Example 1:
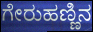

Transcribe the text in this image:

ಗೇರುಹಣ್ಣಿನ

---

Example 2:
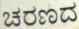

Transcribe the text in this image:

ಚರಣದ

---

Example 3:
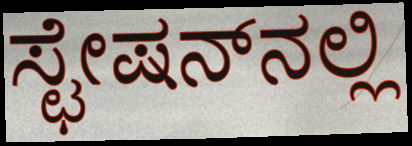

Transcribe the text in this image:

ಸ್ಟೇಷನ್‌ನಲ್ಲಿ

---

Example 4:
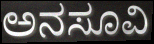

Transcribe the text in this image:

ಅನಸೂವಿ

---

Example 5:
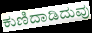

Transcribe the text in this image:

ಕುಣಿದಾಡಿದುವು